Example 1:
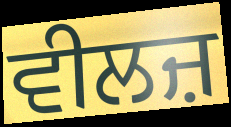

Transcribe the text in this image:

ਵੀਲਜ਼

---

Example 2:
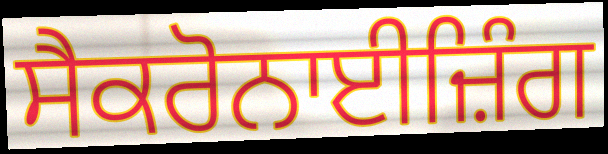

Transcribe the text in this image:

ਸੈਕਰੋਨਾਈਜ਼ਿੰਗ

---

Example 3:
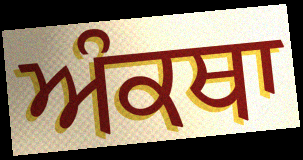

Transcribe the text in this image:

ਅੰਕਥਾ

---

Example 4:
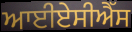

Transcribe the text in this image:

ਆਈਏਸੀਐੱਸ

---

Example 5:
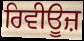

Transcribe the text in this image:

ਰਿਵੀਊਜ਼